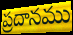
ప్రదానము